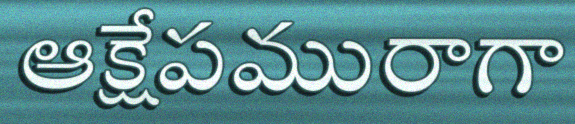
ఆక్షేపమురాగా